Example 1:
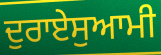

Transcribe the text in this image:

ਦੁਰਾਏਸੁਆਮੀ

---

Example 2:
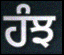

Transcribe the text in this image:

ਹੰਝ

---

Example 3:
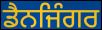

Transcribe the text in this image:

ਡੈਨਜਿੰਗਰ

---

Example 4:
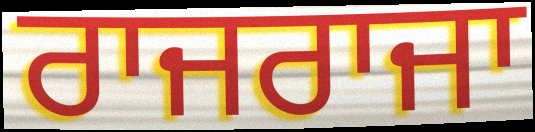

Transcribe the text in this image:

ਰਾਜਰਾਜਾ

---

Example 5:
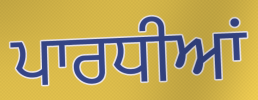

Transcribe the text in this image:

ਪਾਰਧੀਆਂ